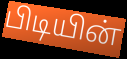
பிடியின்